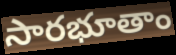
సారభూతాం